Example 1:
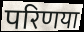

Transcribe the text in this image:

परिणया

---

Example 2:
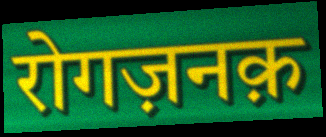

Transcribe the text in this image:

रोगज़नक़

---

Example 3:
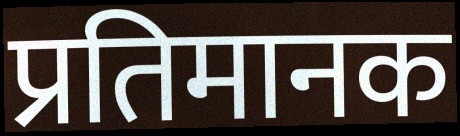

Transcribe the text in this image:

प्रतिमानक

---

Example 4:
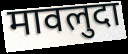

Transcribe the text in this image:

मावलुदा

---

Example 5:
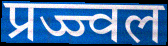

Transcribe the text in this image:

प्रज्ज्वल